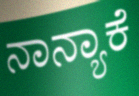
ನಾನ್ಯಾಕೆ